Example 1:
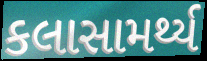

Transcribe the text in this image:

કલાસામર્થ્ય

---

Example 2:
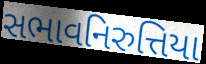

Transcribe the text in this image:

સભાવનિરુત્તિયા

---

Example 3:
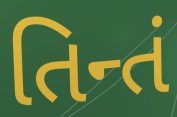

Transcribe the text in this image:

તિન્તં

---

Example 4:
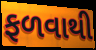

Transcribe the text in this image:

ફળવાથી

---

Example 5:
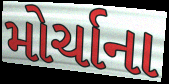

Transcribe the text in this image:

મોર્ચાના